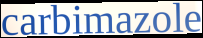
carbimazole